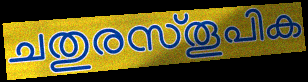
ചതുരസ്തൂപിക